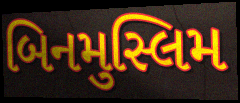
બિનમુસ્લિમ